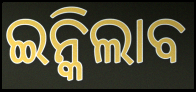
ଇନ୍କିଲାବ